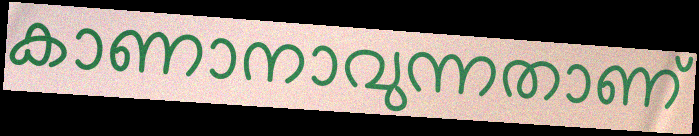
കാണാനാവുന്നതാണ്